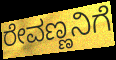
ರೇವಣ್ಣನಿಗೆ